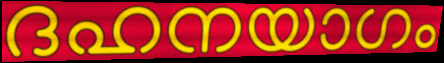
ദഹനയാഗം